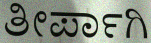
ತೀರ್ಪಾಗಿ